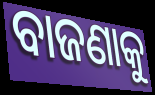
ବାଜଣାକୁ